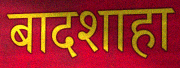
बादशाहा